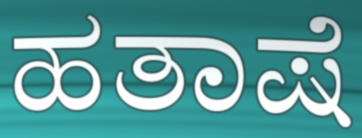
ಹತಾಷೆ